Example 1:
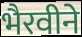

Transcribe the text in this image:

भैरवीने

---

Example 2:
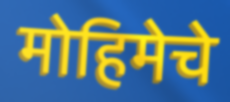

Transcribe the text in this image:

मोहिमेचे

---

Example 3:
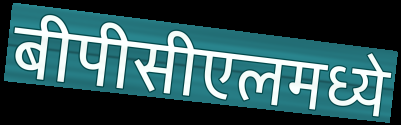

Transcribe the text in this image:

बीपीसीएलमध्ये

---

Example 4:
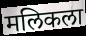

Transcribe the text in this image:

मलिकला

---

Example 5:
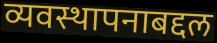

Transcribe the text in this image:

व्यवस्थापनाबद्दल